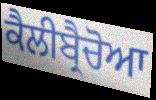
ਕੈਲੀਬ੍ਰੈਚੋਆ